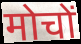
मोचों